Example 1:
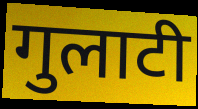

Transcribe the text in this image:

गुलाटी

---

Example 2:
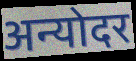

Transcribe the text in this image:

अन्योदर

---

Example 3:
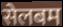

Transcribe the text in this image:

सेलबम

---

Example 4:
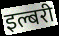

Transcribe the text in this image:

इल्बरी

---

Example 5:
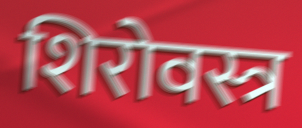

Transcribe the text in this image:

शिरोवस्त्र